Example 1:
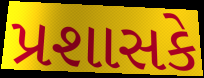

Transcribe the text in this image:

પ્રશાસકે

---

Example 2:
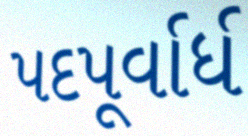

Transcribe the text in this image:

પદપૂર્વાર્ધ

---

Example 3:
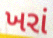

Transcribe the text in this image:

ખરાં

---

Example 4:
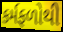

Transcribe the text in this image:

કર્મફળોથી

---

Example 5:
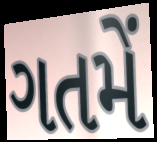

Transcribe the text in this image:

ગતમેં